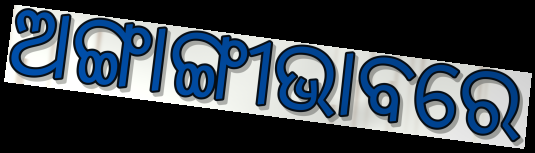
ଅଙ୍ଗାଙ୍ଗୀଭାବରେ